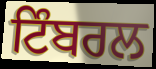
ਟਿੰਬਰਲ